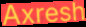
Axresh